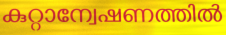
കുറ്റാന്വേഷണത്തിൽ